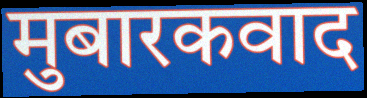
मुबारकवाद